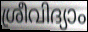
ശ്രീവിദ്യാം